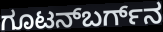
ಗೂಟನ್‌ಬರ್ಗ್‌ನ